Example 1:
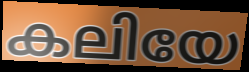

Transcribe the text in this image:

കലിയേ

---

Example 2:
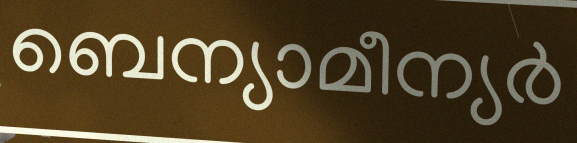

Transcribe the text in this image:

ബെന്യാമീന്യർ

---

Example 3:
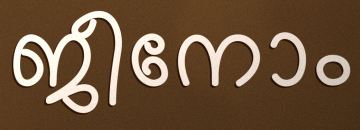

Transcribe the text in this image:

ജീനോം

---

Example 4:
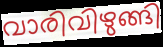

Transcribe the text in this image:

വാരിവിഴുങ്ങി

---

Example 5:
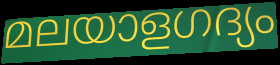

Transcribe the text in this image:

മലയാളഗദ്യം